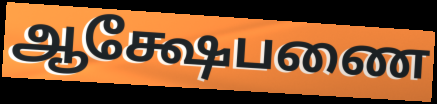
ஆக்ஷேபணை